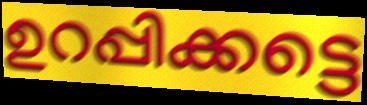
ഉറപ്പിക്കട്ടെ